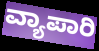
ವ್ಯಾಪಾರಿ